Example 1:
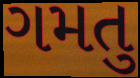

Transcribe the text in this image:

ગમતુ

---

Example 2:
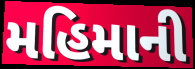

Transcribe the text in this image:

મહિમાની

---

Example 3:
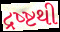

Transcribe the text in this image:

દ્રષ્ષ્ટથી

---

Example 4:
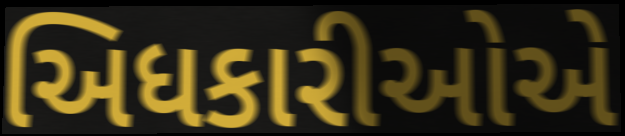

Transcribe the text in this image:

અિધકારીઓએ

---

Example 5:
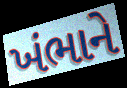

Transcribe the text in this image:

ખંભાને